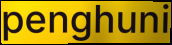
penghuni